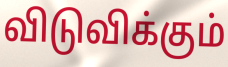
விடுவிக்கும்